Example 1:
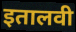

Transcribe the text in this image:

इतालवी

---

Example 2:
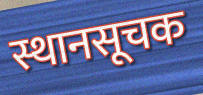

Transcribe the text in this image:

स्थानसूचक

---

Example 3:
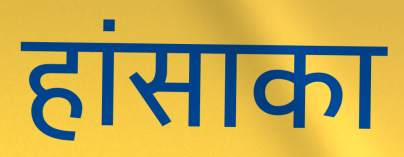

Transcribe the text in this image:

हांसाका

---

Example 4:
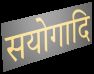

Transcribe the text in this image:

सयोगादि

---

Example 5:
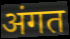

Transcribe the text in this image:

अंगत